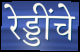
रेड्डींचे